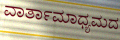
ವಾರ್ತಾಮಾಧ್ಯಮದ